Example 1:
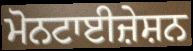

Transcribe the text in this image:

ਮੋਨਟਾਈਜ਼ੇਸ਼ਨ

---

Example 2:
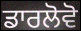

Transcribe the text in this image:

ਡਾਰਲੋਵੋ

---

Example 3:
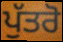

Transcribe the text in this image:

ਪੁੱਤਰੋ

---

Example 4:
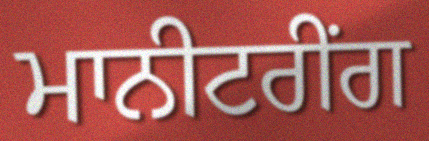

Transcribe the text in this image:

ਮਾਨੀਟਰੀਂਗ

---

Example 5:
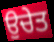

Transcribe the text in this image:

ਉਚੇਤ